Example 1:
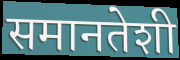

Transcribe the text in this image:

समानतेशी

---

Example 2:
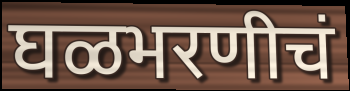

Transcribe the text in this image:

घळभरणीचं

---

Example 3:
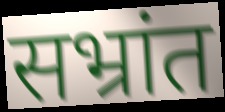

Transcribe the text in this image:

सभ्रांत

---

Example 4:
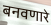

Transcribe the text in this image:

बनवणारे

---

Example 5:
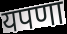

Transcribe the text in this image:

यपणा